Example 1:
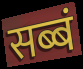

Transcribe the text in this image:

सब्बं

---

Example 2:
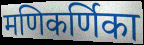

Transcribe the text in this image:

मणिकर्णिका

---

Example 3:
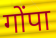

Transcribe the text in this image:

गोंपा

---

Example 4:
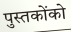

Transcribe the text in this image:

पुस्तकोंको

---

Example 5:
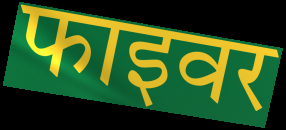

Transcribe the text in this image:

फाइवर